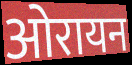
ओरायन